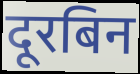
दूरबिन